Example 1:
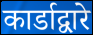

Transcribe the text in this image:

कार्डाद्वारे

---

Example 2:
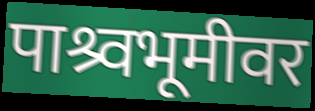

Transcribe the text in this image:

पाश्र्वभूमीवर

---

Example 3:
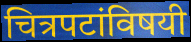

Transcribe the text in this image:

चित्रपटांविषयी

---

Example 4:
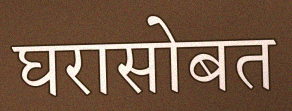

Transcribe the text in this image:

घरासोबत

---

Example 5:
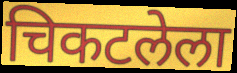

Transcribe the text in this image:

चिकटलेला